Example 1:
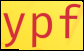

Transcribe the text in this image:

ypf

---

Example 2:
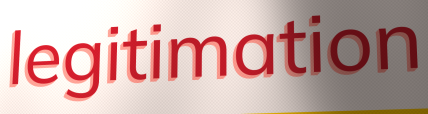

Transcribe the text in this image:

legitimation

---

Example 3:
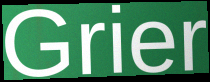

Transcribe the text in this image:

Grier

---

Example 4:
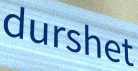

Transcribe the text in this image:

durshet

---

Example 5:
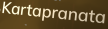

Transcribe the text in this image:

Kartapranata